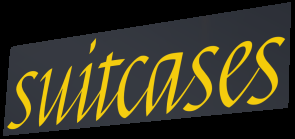
suitcases